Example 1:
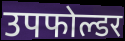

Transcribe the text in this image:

उपफोल्डर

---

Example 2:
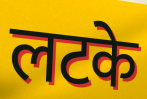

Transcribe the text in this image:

लटके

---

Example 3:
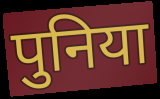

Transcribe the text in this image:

पुनिया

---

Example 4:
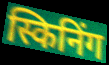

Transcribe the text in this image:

स्किनिंग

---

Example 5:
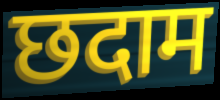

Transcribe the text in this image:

छदाम